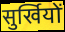
सुर्खियों